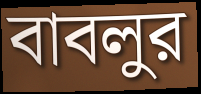
বাবলুর